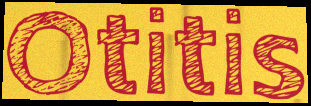
Otitis